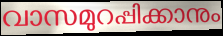
വാസമുറപ്പിക്കാനും